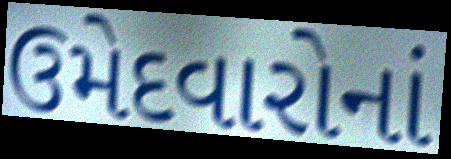
ઉમેદવારોનાં